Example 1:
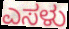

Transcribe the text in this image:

ಎಸಳು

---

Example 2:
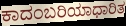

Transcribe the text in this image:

ಕಾದಂಬರಿಯಾಧಾರಿತ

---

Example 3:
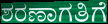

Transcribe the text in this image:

ಶರಣಾಗತಿಗೆ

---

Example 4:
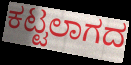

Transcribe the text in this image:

ಕಟ್ಟಲಾಗದ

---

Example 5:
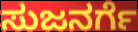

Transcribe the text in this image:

ಸುಜನರ್ಗೆ